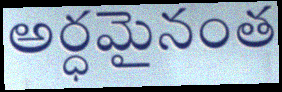
అర్ధమైనంత